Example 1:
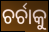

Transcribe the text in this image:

ଚର୍ଚାକୁ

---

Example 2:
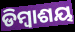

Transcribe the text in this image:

ଡିମ୍ବାଶୟ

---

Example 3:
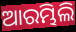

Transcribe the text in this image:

ଆରମ୍ଭିଲି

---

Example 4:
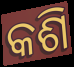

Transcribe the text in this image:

କଶି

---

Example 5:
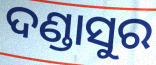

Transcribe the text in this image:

ଦଣ୍ଡାସୁର